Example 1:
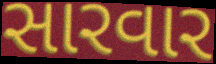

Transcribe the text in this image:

સારવાર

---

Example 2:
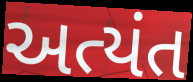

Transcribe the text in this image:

અત્યંત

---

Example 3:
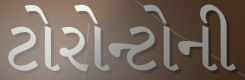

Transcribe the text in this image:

ટોરોન્ટોની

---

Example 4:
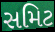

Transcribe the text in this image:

સમિટ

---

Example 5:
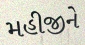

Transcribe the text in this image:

મહીજીને